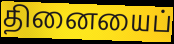
தினையைப்